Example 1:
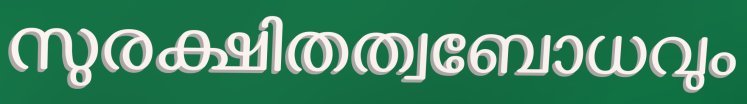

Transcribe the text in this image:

സുരക്ഷിതത്വബോധവും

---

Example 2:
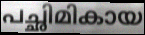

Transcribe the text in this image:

പച്ഛിമികായ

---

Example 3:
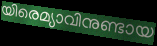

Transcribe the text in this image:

യിരെമ്യാവിനുണ്ടായ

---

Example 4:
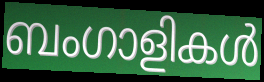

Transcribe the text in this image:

ബംഗാളികൾ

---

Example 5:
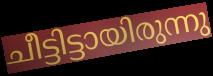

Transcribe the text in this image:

ചീട്ടിട്ടായിരുന്നു